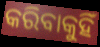
କରିବାକୁହିଁ